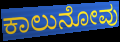
ಕಾಲುನೋವು